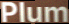
Plum